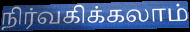
நிர்வகிக்கலாம்